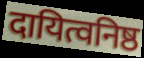
दायित्वनिष्ठ